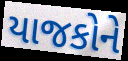
યાજકોને